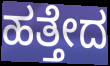
ಹತ್ತೇದ